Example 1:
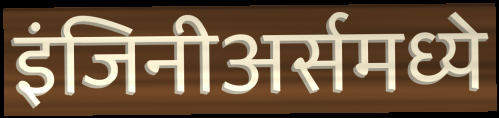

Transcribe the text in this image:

इंजिनीअर्समध्ये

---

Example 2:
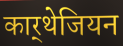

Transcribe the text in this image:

कार्थेजियन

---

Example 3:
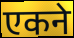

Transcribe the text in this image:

एकने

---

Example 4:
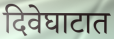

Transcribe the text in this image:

दिवेघाटात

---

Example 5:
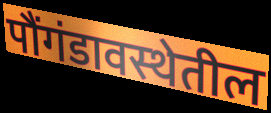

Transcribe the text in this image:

पौंगंडावस्थेतील